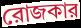
রোজকার